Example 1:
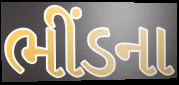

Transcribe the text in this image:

ભીંડના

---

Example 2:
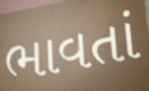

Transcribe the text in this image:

ભાવતાં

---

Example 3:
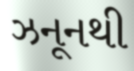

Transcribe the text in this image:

ઝનૂનથી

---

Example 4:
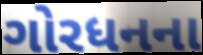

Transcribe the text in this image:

ગોરધનના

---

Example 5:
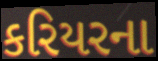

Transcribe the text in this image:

કરિયરના